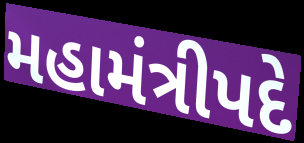
મહામંત્રીપદે